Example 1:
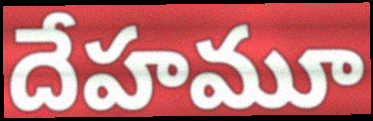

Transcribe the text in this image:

దేహమూ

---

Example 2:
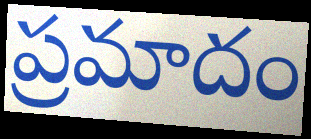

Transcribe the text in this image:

ప్రమాదం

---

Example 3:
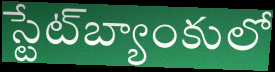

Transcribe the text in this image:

స్టేట్‌బ్యాంకులో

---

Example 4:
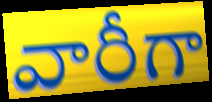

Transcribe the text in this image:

వారీగా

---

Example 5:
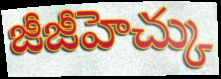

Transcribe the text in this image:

జీజీహెచ్కు